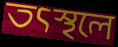
তৎস্থলে